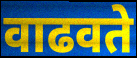
वाढवते